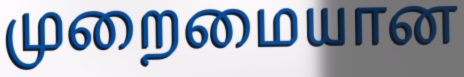
முறைமையான